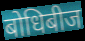
बोधिबीज